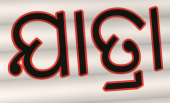
ଯାତ୍ରା